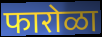
फारोळा